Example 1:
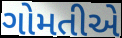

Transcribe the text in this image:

ગોમતીએ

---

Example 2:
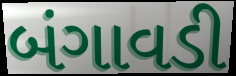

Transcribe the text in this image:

બંગાવડી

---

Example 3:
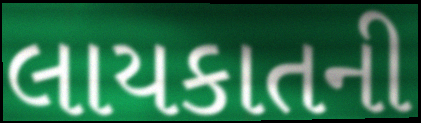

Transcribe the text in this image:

લાયકાતની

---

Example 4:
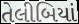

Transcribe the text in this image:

તેલીબિયાં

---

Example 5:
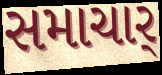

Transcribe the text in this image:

સમાચાર્